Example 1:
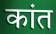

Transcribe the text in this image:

कांत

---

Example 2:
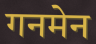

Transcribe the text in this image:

गनमेन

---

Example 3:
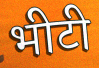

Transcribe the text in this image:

भीटी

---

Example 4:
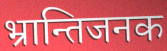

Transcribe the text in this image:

भ्रान्तिजनक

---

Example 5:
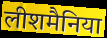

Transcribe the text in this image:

लीशमैनिया